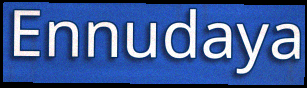
Ennudaya